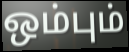
ஒம்பும்